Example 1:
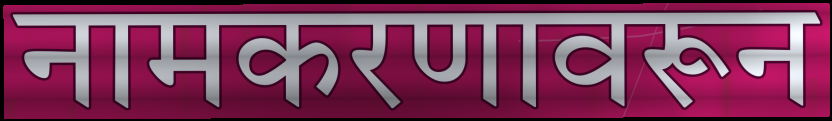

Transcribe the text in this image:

नामकरणावरून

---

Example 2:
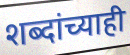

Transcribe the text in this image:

शब्दांच्याही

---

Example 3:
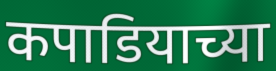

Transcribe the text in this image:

कपाडियाच्या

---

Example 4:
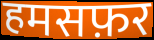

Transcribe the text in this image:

हमसफ़र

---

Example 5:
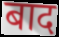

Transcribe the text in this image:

बाद